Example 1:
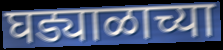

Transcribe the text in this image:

घड्याळाच्या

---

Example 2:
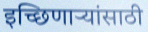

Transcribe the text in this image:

इच्छिणाऱ्यांसाठी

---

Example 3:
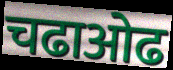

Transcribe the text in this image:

चढाओढ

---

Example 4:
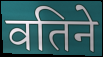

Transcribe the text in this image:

वतिने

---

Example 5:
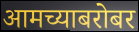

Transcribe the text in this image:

आमच्याबरोबर